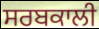
ਸਰਬਕਾਲੀ